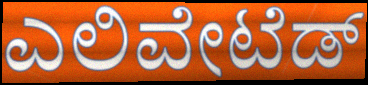
ಎಲಿವೇಟೆಡ್